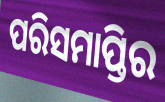
ପରିସମାପ୍ତିର